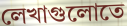
লেখাগুলোতে